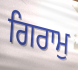
ਗਿਰਾਮੁ